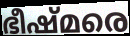
ഭീഷ്മരെ